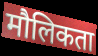
मौलिकता